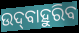
ଉଦ୍‌ବାହୁରିବ